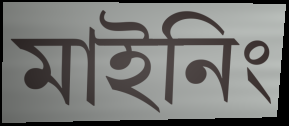
মাইনিং